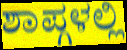
ಶಾಪ್ಗಳಲ್ಲಿ